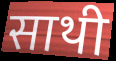
साथी